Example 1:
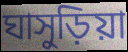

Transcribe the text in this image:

ঘাসুড়িয়া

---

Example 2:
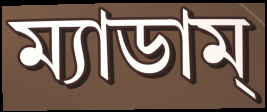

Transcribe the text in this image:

ম্যাডাম্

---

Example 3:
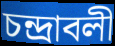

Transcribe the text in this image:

চন্দ্রাবলী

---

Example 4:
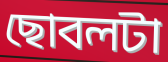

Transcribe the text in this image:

ছোবলটা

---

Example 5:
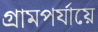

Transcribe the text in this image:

গ্রামপর্যায়ে